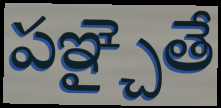
పఞ్చైతే